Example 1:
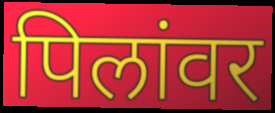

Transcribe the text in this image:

पिलांवर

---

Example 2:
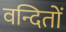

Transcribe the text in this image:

वन्दितों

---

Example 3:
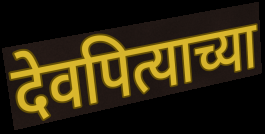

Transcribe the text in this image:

देवपित्याच्या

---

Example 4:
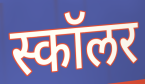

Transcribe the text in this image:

स्कॉलर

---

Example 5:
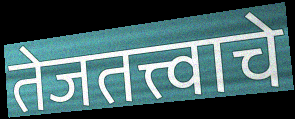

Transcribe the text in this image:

तेजतत्त्वाचे